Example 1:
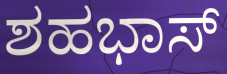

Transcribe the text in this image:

ಶಹಭಾಸ್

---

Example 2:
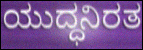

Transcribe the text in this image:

ಯುದ್ಧನಿರತ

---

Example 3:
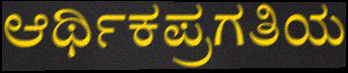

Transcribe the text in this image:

ಆರ್ಥಿಕಪ್ರಗತಿಯ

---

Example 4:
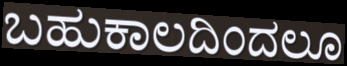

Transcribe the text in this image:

ಬಹುಕಾಲದಿಂದಲೂ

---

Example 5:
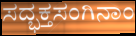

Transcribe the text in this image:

ಸದ್ಭಕ್ತಸಂಗಿನಾಂ